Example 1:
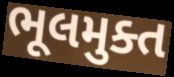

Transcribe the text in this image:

ભૂલમુક્ત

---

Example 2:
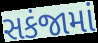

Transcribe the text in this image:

સકંજામાં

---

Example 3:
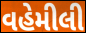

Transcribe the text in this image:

વહેમીલી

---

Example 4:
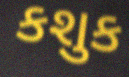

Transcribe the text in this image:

કશુક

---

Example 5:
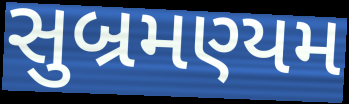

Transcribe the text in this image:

સુબ્રમણ્યમ